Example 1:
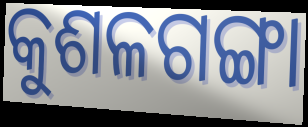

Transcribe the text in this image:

କୁଶଳଗଙ୍ଗା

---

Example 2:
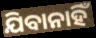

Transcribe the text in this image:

ଯିବାନାହିଁ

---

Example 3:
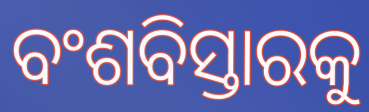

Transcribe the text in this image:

ବଂଶବିସ୍ତାରକୁ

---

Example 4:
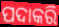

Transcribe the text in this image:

ପଦାକରି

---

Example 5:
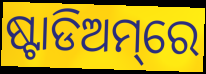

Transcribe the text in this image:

ଷ୍ଟାଡିଅମ୍‌ରେ